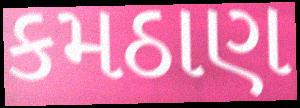
કમઠાણ